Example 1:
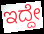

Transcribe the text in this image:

ಇದ್ದೇ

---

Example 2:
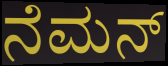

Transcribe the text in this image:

ನೆಮನ್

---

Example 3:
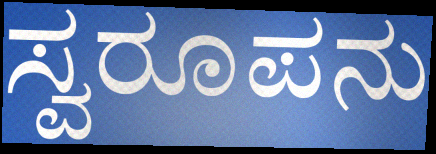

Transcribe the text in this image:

ಸ್ವರೂಪನು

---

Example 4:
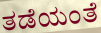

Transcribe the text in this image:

ತಡೆಯಂತೆ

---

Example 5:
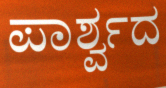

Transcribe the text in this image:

ಪಾರ್ಶ್ವದ